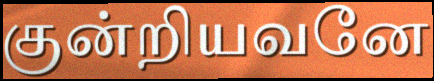
குன்றியவனே